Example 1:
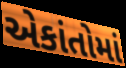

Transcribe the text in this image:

એકાંતોમાં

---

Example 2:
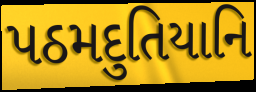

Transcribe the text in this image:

પઠમદુતિયાનિ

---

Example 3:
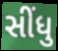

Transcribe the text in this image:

સીંધુ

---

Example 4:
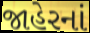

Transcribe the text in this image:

જાહેરનાં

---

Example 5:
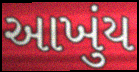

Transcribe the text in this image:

આખુંય